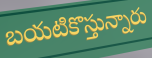
బయటికొస్తున్నారు